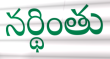
నర్థింతు